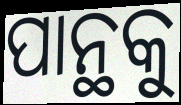
ପାନ୍ଥକୁ